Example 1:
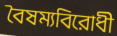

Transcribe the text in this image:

বৈষম্যবিরোধী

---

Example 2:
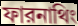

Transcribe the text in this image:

ফারনাথিং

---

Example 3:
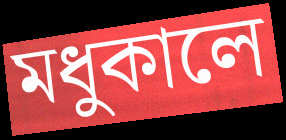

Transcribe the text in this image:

মধুকালে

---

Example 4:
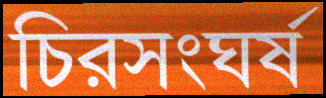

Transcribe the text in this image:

চিরসংঘর্ষ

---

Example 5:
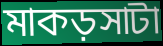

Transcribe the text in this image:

মাকড়সাটা